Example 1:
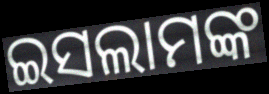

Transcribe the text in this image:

ଇସଲାମଙ୍କ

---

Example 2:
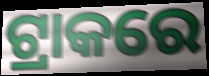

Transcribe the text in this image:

ଟ୍ରାକରେ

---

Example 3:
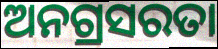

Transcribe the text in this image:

ଅନଗ୍ରସରତା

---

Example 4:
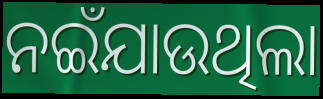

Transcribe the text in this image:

ନଇଁଯାଉଥିଲା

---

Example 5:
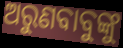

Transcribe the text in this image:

ଅରୁଣବାବୁଙ୍କୁ